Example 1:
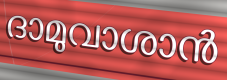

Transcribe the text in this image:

ദാമുവാശാൻ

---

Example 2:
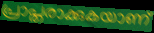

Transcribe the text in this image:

പ്രാപ്തരാക്കുകയാണ്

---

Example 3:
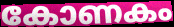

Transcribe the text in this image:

കോണകം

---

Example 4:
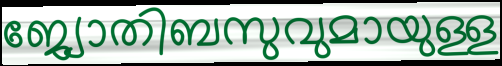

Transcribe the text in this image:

ജ്യോതിബസുവുമായുള്ള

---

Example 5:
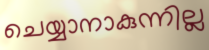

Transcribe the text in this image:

ചെയ്യാനാകുന്നില്ല